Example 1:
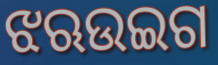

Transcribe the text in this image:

ଝଋଉଇଗ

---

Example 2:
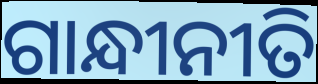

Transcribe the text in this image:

ଗାନ୍ଧୀନୀତି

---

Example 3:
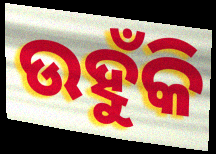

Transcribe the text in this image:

ଉହୁଁକି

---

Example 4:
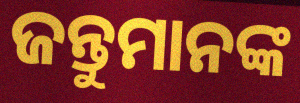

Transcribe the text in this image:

ଜନ୍ତୁମାନଙ୍କ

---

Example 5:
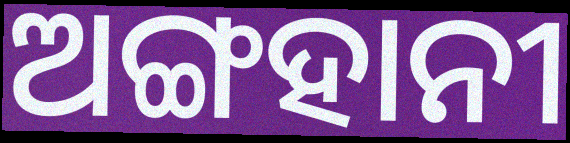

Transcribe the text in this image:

ଅଙ୍ଗହାନୀ